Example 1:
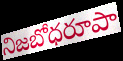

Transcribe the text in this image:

నిజబోధరూపా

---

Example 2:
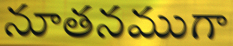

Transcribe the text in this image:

నూతనముగా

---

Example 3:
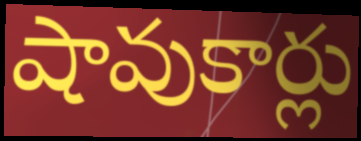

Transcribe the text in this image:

షావుకార్లు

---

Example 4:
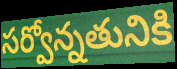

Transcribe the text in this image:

సర్వోన్నతునికి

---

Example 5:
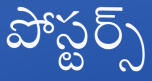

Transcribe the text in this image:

పోస్టర్స్